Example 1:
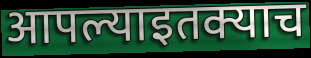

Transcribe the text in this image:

आपल्याइतक्याच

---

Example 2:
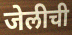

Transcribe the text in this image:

जेलीची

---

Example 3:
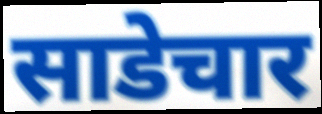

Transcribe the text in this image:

साडेचार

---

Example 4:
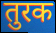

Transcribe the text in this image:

तुरक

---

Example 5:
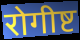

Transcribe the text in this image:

रोगीष्ट